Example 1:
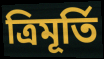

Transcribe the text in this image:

ত্ৰিমূৰ্তি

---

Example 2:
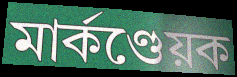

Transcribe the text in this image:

মাৰ্কণ্ডেয়ক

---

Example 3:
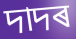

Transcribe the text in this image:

দাদৰ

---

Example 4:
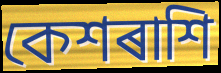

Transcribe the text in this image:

কেশৰাশি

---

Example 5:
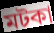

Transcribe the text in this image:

মটকা